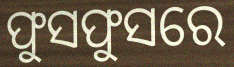
ଫୁସଫୁସରେ